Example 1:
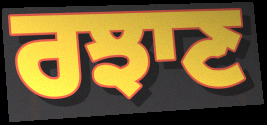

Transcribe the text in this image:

ਰਝਾਣ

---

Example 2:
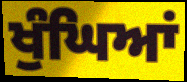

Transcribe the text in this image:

ਖੁੰਘਿਆਂ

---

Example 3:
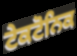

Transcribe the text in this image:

ਟੇਕਟੋਨਿਕ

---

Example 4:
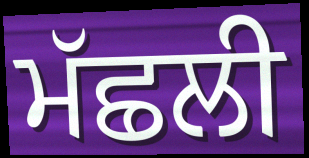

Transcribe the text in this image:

ਮੱਛਲੀ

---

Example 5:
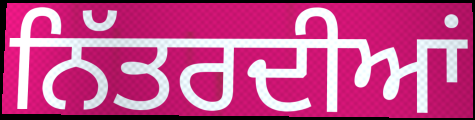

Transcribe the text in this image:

ਨਿੱਤਰਦੀਆਂ